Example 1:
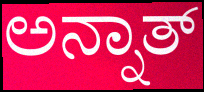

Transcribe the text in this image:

ಅನ್ನಾತ್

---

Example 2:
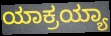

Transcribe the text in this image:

ಯಾಕ್ರಯ್ಯಾ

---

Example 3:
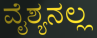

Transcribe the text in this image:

ವೈಶ್ಯನಲ್ಲ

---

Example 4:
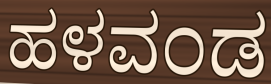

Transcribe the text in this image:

ಹಳವಂಡ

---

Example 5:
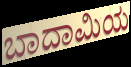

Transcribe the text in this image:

ಬಾದಾಮಿಯ